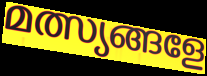
മത്സ്യങ്ങളേ